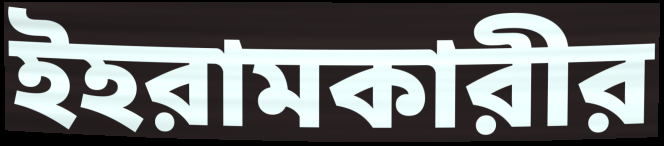
ইহরামকারীর